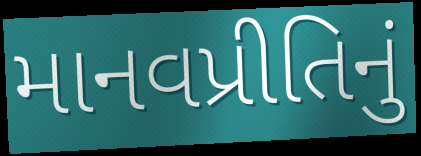
માનવપ્રીતિનું